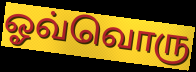
ஓவ்வொரு